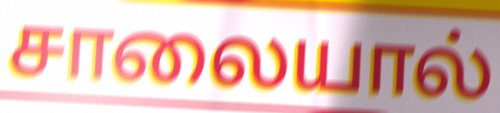
சாலையால்